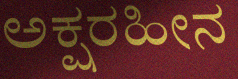
ಅಕ್ಷರಹೀನ